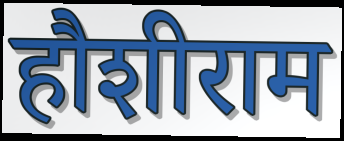
हौशीराम